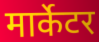
मार्केटर